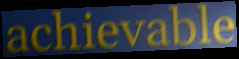
achievable